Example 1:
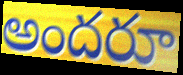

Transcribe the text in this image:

అందరూ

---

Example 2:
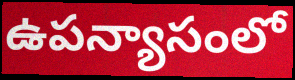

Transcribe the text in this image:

ఉపన్యాసంలో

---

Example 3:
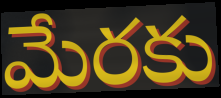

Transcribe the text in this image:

మేరకు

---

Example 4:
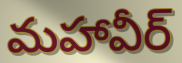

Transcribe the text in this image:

మహావీర్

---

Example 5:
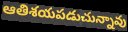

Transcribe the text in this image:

ఆతిశయపడుచున్నావు